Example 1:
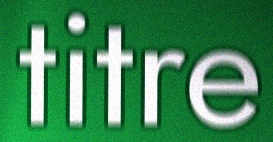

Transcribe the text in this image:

titre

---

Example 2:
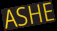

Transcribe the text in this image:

ASHE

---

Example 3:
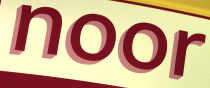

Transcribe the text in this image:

noor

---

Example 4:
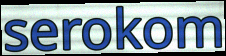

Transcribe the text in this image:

serokom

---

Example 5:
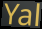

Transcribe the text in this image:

Yal